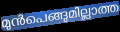
മുൻപെങ്ങുമില്ലാത്ത